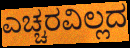
ಎಚ್ಚರವಿಲ್ಲದ